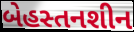
બેહસ્તનશીન